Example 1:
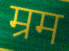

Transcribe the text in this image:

म्रम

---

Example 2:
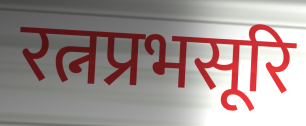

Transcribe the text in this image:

रत्नप्रभसूरि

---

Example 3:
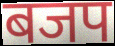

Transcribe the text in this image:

बजप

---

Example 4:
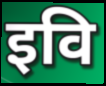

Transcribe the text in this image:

इवि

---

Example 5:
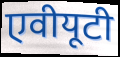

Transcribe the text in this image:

एवीयूटी